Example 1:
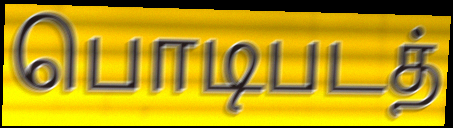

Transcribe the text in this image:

பொடிபடத்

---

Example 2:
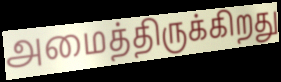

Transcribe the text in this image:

அமைத்திருக்கிறது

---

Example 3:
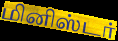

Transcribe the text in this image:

மினிஸ்டர்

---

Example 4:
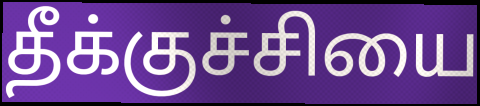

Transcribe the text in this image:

தீக்குச்சியை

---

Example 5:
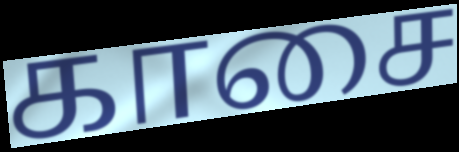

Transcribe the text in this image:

காசை